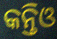
କନ୍ତିଓ